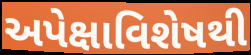
અપેક્ષાવિશેષથી